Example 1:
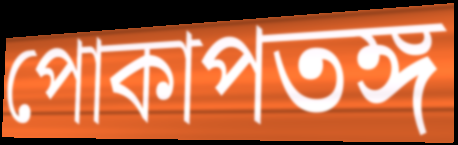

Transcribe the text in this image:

পোকাপতঙ্গ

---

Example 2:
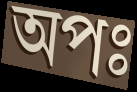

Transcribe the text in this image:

অপঃ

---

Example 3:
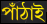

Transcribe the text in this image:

পাঁঠাই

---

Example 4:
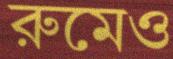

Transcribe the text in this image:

রুমেও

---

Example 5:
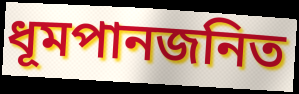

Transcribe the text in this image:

ধূমপানজনিত